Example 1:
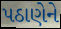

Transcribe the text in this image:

પઠાણેને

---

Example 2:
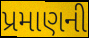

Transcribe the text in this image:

પ્રમાણની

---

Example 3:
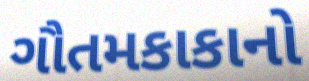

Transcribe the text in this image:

ગૌતમકાકાનો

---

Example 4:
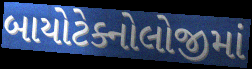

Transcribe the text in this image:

બાયોટેક્નોલોજીમાં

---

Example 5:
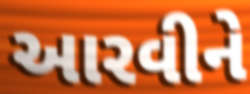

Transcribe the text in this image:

આરવીને